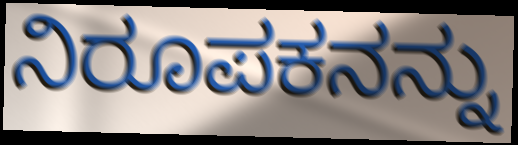
ನಿರೂಪಕನನ್ನು